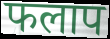
फलाप